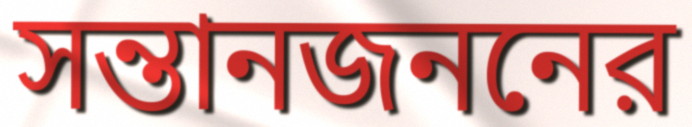
সন্তানজননের